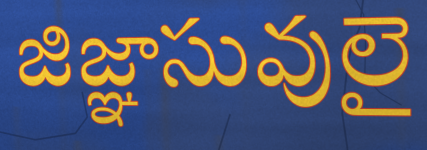
జిజ్ఞాసువులై